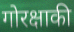
गोरक्षाकी